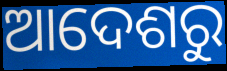
ଆଦେଶରୁ